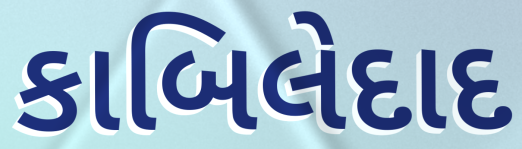
કાબિલેદાદ